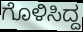
ಗೊಳಿಸಿದ್ದ